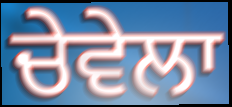
ਚੇਵੇਲਾ